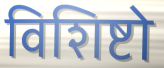
विशिष्टो